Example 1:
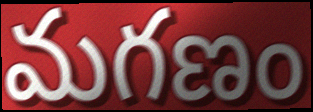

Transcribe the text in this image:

మగణం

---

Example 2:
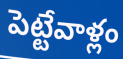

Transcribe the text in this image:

పెట్టేవాళ్లం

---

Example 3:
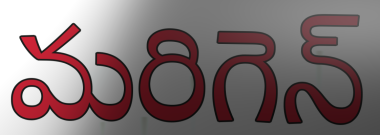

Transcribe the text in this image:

మరిగెన్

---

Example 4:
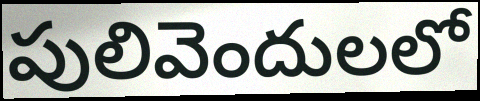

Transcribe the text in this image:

పులివెందులలో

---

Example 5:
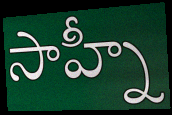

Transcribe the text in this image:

సాహ్నీ